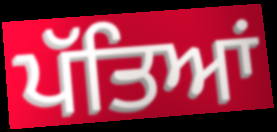
ਪੱਤਿਆਂ